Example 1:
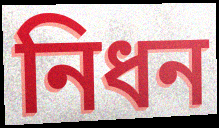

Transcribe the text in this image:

নিধন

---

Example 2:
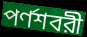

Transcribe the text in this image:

পর্ণশবরী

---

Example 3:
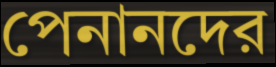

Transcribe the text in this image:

পেনানদের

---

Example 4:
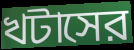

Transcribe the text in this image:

খটাসের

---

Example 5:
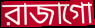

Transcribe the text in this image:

রাজাগো